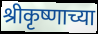
श्रीकृष्णाच्या